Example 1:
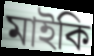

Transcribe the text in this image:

মাইকি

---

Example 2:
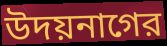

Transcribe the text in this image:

উদয়নাগের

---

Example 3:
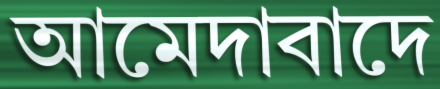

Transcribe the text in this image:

আমেদাবাদে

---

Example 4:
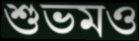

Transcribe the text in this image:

শুভমও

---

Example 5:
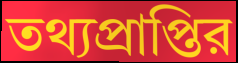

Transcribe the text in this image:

তথ্যপ্রাপ্তির